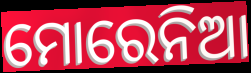
ମୋରେନିଆ